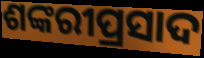
ଶଙ୍କରୀପ୍ରସାଦ